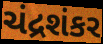
ચંદ્રશંકર